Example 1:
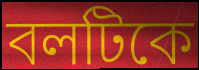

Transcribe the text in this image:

বলটিকে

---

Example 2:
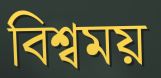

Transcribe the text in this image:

বিশ্বময়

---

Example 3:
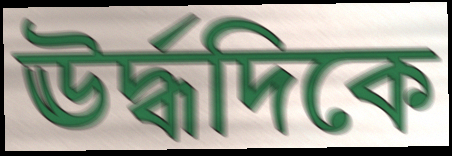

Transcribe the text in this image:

ঊর্দ্ধদিকে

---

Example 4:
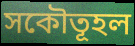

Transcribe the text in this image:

সকৌতূহল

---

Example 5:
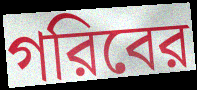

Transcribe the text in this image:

গরিবের